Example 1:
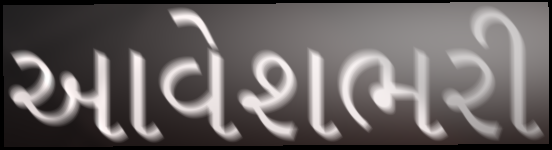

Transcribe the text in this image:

આવેશભરી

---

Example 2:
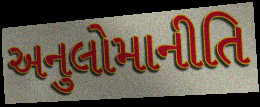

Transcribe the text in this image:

અનુલોમાનીતિ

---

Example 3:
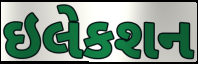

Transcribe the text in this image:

ઇલેકશન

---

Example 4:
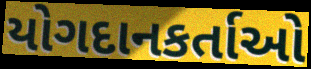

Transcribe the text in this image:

યોગદાનકર્તાઓ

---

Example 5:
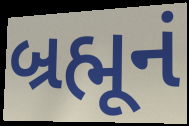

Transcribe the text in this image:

બ્રહ્મૂનં